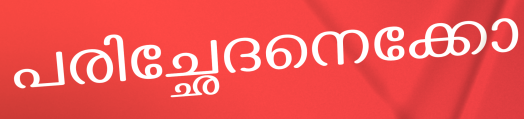
പരിച്ഛേദനെക്കോ